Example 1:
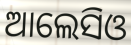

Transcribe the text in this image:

ଆଲେସିଓ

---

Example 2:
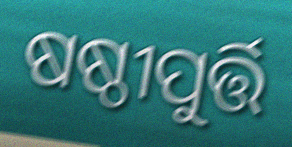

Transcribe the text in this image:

ଷଷ୍ଠୀପୁର୍ତ୍ତି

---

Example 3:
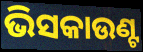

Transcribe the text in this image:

ଭିସକାଉଣ୍ଟ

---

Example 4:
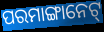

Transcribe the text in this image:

ପରମାଙ୍ଗାନେଟ୍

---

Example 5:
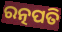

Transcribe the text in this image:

ରତ୍ନପତି